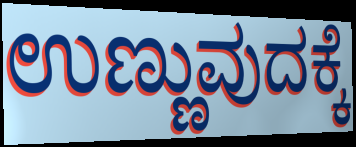
ಉಣ್ಣುವುದಕ್ಕೆ